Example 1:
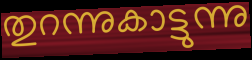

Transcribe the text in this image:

തുറന്നുകാട്ടുന്നു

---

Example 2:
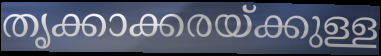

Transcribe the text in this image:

തൃക്കാക്കരയ്ക്കുള്ള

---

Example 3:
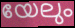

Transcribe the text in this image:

യേലും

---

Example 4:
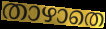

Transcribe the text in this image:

താഴാതെ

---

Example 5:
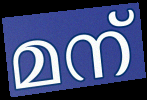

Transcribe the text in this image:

മന്